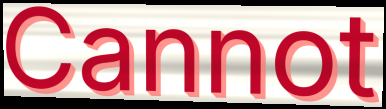
Cannot